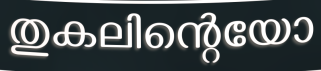
തുകലിന്റെയോ